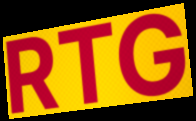
RTG